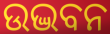
ଉଦ୍ଭବନ